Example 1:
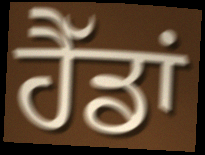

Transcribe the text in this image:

ਹੈੱਡਾਂ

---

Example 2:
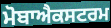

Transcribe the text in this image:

ਮੋਬਾਐਕਸਟਰਮ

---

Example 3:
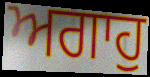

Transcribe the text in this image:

ਅਗਾਹੁ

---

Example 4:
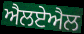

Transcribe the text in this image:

ਐਲਏਐਲ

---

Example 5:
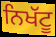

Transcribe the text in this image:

ਨਿਖੱਟੂ